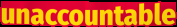
unaccountable